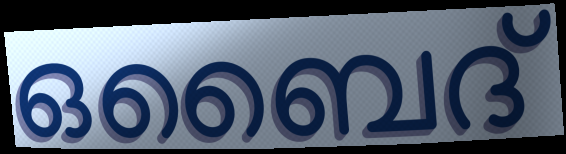
ഒബൈദ്